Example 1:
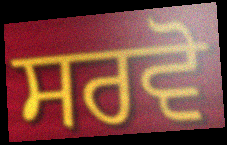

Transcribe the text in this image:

ਸਰਵੋ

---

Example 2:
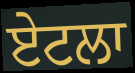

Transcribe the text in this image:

ਏਟਲਾ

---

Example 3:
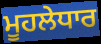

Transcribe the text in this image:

ਮੂਹਲੇਧਾਰ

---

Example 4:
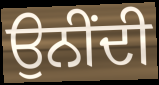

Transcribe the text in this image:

ਉਨੀਂਦੀ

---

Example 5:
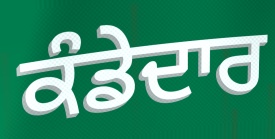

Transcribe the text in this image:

ਕੰਡੇਦਾਰ